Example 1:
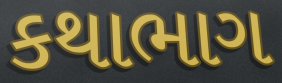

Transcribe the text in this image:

કથાભાગ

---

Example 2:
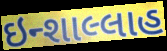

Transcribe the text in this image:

ઇન્શાલ્લાહ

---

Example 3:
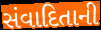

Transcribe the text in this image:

સંવાદિતાની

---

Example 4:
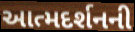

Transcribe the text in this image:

આત્મદર્શનની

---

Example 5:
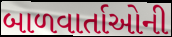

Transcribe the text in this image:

બાળવાર્તાઓની